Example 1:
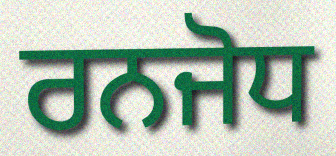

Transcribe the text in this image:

ਰਨਜੋਧ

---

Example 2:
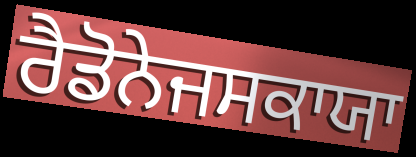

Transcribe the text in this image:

ਰੈਡੋਨੇਜਸਕਾਯਾ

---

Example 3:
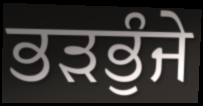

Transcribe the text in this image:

ਭੜਭੁੰਜੇ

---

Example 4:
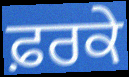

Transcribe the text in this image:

ਫ਼ਰਕੇ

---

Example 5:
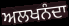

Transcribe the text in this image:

ਅਲਖਨੰਦਾ